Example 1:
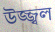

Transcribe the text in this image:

উজ্জ্বল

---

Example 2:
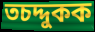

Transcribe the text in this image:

তচদ্দুকক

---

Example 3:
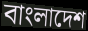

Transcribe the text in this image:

বাংলাদেশ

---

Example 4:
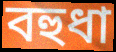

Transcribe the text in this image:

বহুধা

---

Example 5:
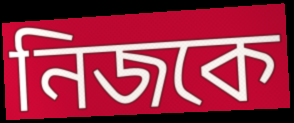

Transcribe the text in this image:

নিজকে